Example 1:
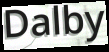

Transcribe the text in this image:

Dalby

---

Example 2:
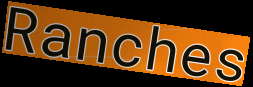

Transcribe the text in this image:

Ranches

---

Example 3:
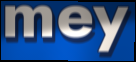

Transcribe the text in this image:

mey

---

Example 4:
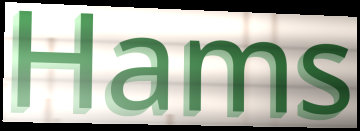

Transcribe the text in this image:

Hams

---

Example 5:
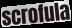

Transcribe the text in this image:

scrofula